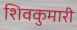
शिवकुमारी